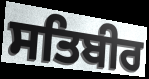
ਸਤਿਬੀਰ